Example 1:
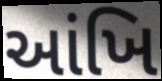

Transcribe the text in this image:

આંખિ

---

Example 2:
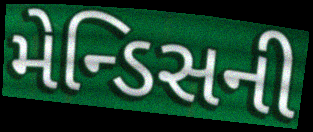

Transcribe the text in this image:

મેન્ડિસની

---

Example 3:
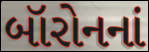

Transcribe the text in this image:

બૉરોનનાં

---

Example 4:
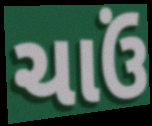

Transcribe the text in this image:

ચાઉં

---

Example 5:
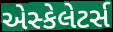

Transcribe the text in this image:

એસ્કેલેટર્સ